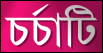
চর্চাটি